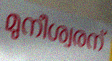
മുനീശ്വരന്